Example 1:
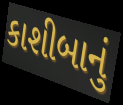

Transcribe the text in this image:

કાશીબાનું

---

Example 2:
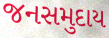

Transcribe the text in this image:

જનસમુદાય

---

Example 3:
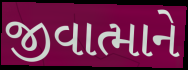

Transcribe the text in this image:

જીવાત્માને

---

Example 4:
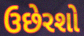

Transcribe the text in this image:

ઉછેરશો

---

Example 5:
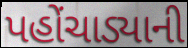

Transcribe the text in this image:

પહોંચાડ્યાની